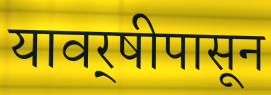
यावर्षीपासून